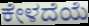
ಕೇಳದೆಯೆ